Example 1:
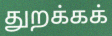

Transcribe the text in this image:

துறக்கக்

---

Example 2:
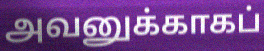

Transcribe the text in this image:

அவனுக்காகப்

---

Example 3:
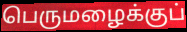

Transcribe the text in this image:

பெருமழைக்குப்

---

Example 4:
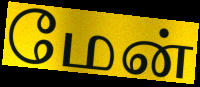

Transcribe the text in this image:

மேன்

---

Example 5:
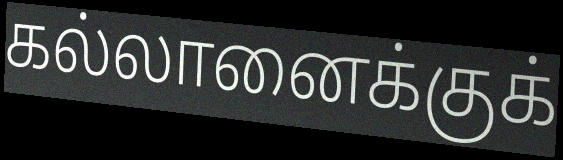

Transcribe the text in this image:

கல்லானைக்குக்